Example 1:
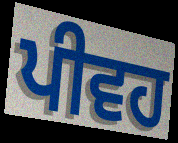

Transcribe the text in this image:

ਪੀਵਹ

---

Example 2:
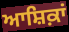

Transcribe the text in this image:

ਆਸ਼ਿਕ਼ਾਂ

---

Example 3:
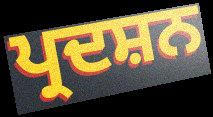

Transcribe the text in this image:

ਪ੍ਰਦਸ਼ਨ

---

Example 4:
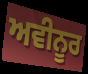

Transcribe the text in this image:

ਅਵੀਨੂਰ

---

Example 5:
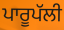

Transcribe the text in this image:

ਪਾਰੂਪੱਲੀ